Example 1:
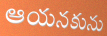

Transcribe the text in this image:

ఆయనకును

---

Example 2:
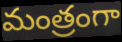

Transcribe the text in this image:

మంత్రంగా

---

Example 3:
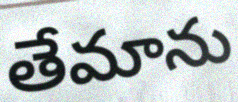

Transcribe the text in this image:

తేమాను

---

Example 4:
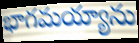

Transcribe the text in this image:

భాగమయ్యాను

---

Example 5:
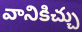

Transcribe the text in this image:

వానికిచ్చు